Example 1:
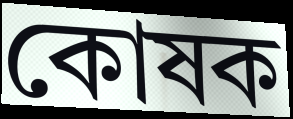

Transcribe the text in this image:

কোষক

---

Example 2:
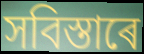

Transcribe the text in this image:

সবিস্তাৰে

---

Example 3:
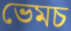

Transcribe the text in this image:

ভেমচ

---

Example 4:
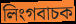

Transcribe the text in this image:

লিংগবাচক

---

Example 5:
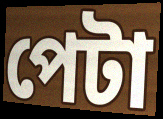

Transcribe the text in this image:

পেটা